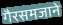
गैरसमजाने